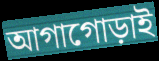
আগাগোড়াই